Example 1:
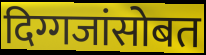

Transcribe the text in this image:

दिग्गजांसोबत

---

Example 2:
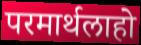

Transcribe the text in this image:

परमार्थलाहो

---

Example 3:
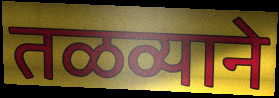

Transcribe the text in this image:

तळव्याने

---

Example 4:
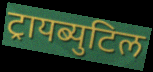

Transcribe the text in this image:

ट्रायब्युटिल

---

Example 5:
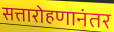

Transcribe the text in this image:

सत्तारोहणानंतर